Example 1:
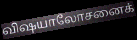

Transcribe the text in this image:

விஷயாலோசனைக்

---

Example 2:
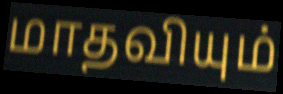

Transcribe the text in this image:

மாதவியும்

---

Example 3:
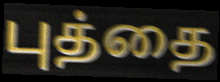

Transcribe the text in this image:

புத்தை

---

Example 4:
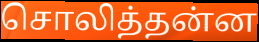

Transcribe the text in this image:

சொலித்தன்ன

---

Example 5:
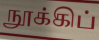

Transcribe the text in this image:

நூக்கிப்